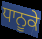
ਧਾਨੂਕੇ